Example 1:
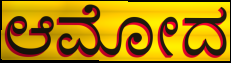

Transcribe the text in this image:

ಆಮೋದ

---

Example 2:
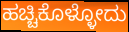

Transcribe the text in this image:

ಹಚ್ಚಿಕೊಳ್ಳೋದು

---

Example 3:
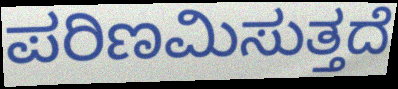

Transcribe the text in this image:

ಪರಿಣಮಿಸುತ್ತದೆ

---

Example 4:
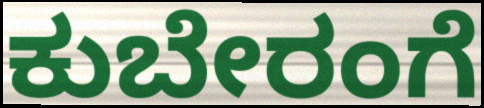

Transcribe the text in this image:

ಕುಬೇರಂಗೆ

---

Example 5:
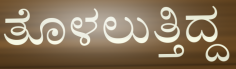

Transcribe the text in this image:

ತೊಳಲುತ್ತಿದ್ದ